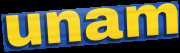
unam